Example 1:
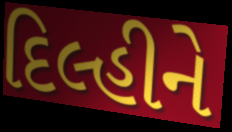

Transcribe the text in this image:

દિલ્હીને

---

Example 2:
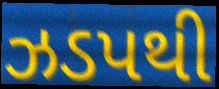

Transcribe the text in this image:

ઝડપથી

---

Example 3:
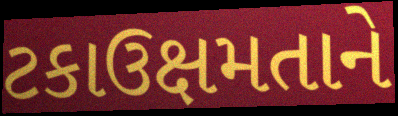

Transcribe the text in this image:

ટકાઉક્ષમતાને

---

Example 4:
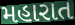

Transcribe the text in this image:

મહારાત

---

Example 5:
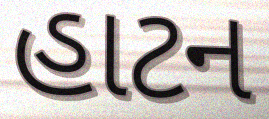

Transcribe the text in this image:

હાટન